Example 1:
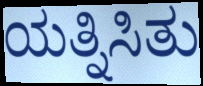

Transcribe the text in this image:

ಯತ್ನಿಸಿತು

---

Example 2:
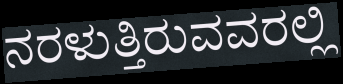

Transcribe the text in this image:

ನರಳುತ್ತಿರುವವರಲ್ಲಿ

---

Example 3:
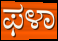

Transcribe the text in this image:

ಫಳಾ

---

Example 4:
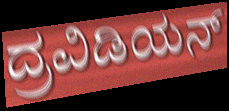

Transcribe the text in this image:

ದ್ರವಿಡಿಯನ್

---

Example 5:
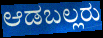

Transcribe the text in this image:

ಆಡಬಲ್ಲರು